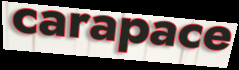
carapace